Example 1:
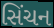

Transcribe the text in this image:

સિંચન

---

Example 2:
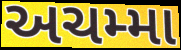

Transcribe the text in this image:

અચમ્મા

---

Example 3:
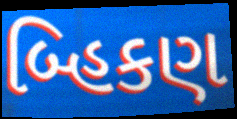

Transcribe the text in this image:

બ્હિકણ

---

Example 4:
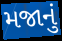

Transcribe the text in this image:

મજાનું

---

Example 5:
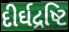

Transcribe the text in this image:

દીર્ઘદ્રષ્ટિ